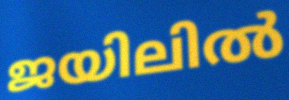
ജയിലിൽ